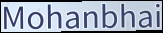
Mohanbhai